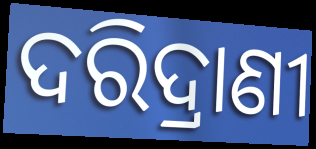
ଦରିଦ୍ରାଣୀ